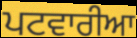
ਪਟਵਾਰੀਆ